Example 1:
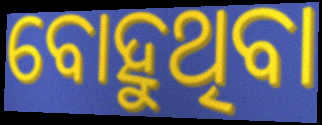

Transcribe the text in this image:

ବୋହୁଥିବା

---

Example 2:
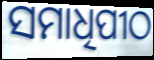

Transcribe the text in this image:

ସମାଧିପୀଠ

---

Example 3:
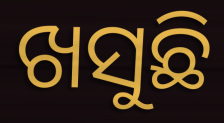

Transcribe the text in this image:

ଖସୁଛି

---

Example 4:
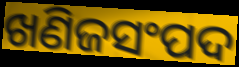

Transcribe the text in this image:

ଖଣିଜସଂପଦ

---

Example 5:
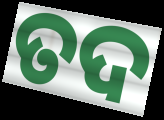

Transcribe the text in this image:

ତଦ